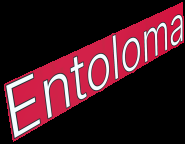
Entoloma